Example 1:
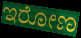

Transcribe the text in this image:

ಇರೋಣ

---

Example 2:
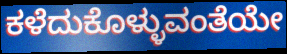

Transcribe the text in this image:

ಕಳೆದುಕೊಳ್ಳುವಂತೆಯೇ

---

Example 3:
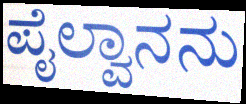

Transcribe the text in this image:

ಪೈಲ್ವಾನನು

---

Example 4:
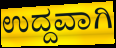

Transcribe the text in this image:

ಉದ್ದವಾಗಿ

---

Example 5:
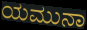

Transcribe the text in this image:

ಯಮುನಾ